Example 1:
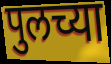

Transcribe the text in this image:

पुलच्या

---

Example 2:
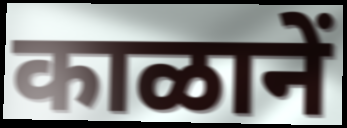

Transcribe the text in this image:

काळानें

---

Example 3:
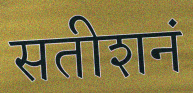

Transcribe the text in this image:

सतीशनं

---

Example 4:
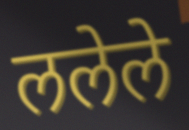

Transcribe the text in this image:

ललेले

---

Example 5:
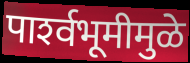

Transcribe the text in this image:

पार्श्‍वभूमीमुळे